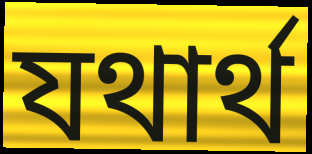
যথার্থ